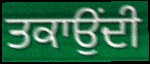
ਤਕਾਉਂਦੀ